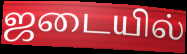
ஜடையில்